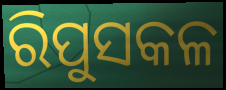
ରିପୁସକଳ